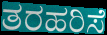
ತರಹರಿಸೆ